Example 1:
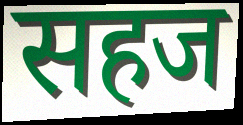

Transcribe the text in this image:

सहज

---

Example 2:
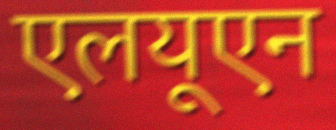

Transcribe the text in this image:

एलयूएन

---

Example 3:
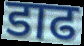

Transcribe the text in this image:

डाढ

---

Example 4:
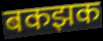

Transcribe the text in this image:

बकझक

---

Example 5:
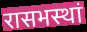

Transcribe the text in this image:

रासभस्थां